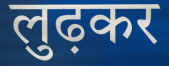
लुढ़कर